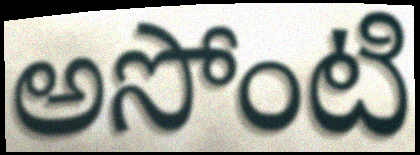
అసోంటి